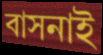
বাসনাই